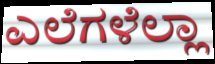
ಎಲೆಗಳೆಲ್ಲಾ